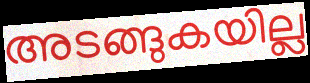
അടങ്ങുകയില്ല